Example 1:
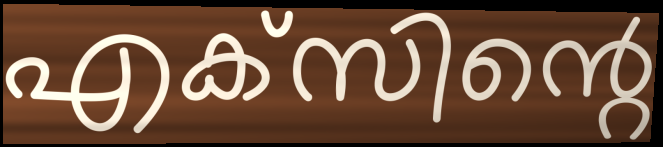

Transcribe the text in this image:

എക്‌സിന്റെ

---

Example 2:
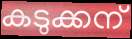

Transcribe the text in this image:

കടുക്കന്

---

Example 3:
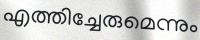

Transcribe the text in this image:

എത്തിച്ചേരുമെന്നും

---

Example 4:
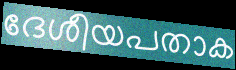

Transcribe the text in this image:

ദേശീയപതാക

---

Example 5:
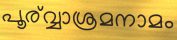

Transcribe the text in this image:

പൂര്വ്വാശ്രമനാമം